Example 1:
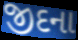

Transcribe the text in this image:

જીદના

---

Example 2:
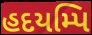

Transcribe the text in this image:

હદયમ્પિ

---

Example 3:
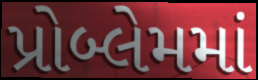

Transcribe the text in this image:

પ્રોબ્લેમમાં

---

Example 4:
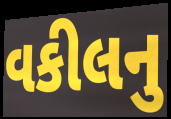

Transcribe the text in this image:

વકીલનુ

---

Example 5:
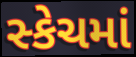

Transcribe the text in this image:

સ્કેચમાં